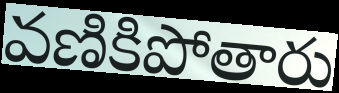
వణికిపోతారు